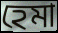
হেমা